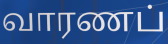
வாரணப்